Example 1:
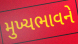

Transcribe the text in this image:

મુખ્યભાવને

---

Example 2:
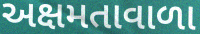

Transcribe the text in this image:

અક્ષમતાવાળા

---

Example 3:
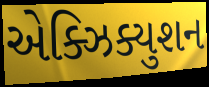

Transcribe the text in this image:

એક્ઝિક્યુશન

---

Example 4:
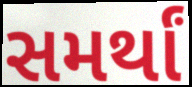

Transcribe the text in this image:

સમર્થાં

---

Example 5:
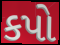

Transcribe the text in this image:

કપો